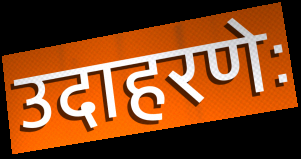
उदाहरणेः